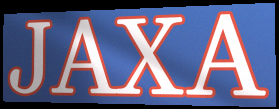
JAXA